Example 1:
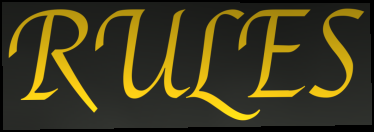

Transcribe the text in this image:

RULES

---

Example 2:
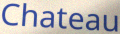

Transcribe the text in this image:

Chateau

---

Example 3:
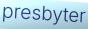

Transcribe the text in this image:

presbyter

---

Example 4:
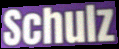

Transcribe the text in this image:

Schulz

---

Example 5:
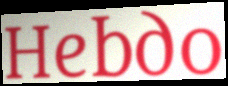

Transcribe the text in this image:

Hebdo